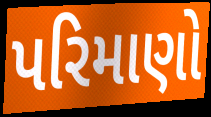
પરિમાણો